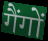
गैंगों